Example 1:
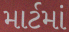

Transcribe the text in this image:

માર્ટમાં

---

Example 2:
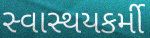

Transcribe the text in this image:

સ્વાસ્થયકર્મી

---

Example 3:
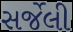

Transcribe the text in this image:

સર્જેલી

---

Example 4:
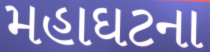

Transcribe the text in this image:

મહાઘટના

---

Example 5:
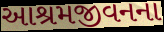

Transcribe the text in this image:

આશ્રમજીવનના